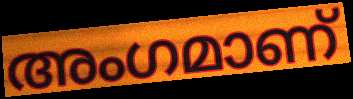
അംഗമാണ്